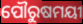
ପୌରୁଷମୟୀ